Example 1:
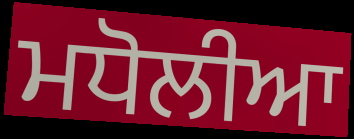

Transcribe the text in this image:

ਮਧੋਲੀਆ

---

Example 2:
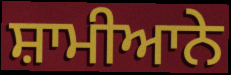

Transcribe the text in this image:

ਸ਼ਾਮੀਆਨੇ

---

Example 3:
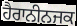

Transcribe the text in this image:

ਹੈਰਾਨੀਨਜਕ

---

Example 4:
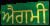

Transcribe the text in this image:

ਐਗਮੀ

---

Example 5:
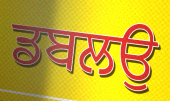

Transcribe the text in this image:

ਡਬਲਉ